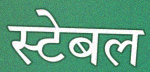
स्‍टेबल